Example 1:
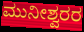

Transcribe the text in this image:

ಮುನೀಶ್ವರರ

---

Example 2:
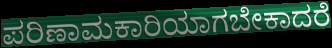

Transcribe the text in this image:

ಪರಿಣಾಮಕಾರಿಯಾಗಬೇಕಾದರೆ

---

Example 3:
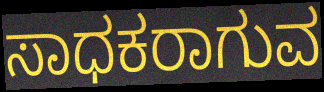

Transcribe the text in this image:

ಸಾಧಕರಾಗುವ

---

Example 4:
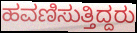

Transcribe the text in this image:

ಹವಣಿಸುತ್ತಿದ್ದರು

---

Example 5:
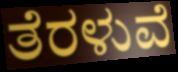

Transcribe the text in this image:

ತೆರಳುವೆ